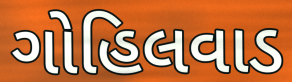
ગોહિલવાડ